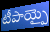
టీపాయ్పై